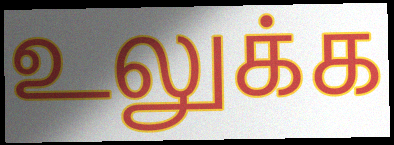
உலுக்க